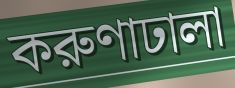
করুণাঢালা